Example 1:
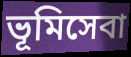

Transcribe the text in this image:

ভূমিসেবা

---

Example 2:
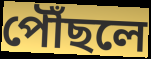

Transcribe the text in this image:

পৌঁছলে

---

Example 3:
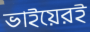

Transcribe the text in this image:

ভাইয়েরই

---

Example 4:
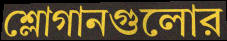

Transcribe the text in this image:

শ্লোগানগুলোর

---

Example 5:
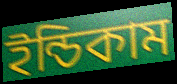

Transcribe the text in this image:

ইন্ডিকাম